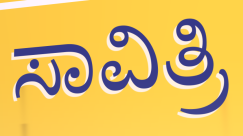
ಸಾವಿತ್ರಿ